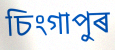
চিংগাপুৰ